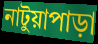
নাটুয়াপাড়া